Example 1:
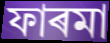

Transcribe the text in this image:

ফাৰমা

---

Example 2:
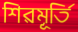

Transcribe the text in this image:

শিৱমূৰ্তি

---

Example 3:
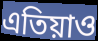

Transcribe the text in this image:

এতিয়াও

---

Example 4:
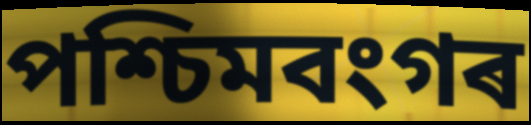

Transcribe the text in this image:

পশ্চিমবংগৰ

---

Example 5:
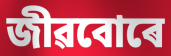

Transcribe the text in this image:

জীৱবোৰে